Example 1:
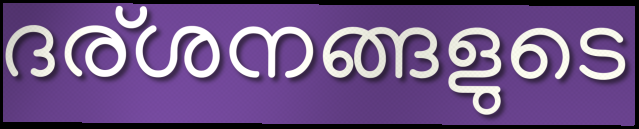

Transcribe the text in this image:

ദര്ശനങ്ങളുടെ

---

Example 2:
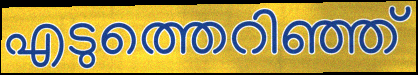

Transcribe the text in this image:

എടുത്തെറിഞ്ഞ്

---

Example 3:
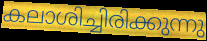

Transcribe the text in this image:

കലാശിച്ചിരിക്കുന്നു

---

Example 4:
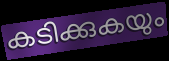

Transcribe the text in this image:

കടിക്കുകയും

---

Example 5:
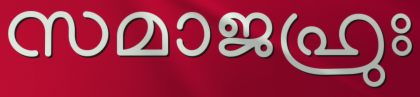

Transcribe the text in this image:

സമാജഹ്രുഃ